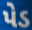
પેડ